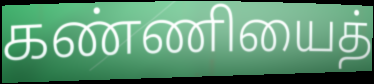
கண்ணியைத்